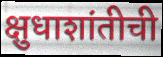
क्षुधाशांतीची